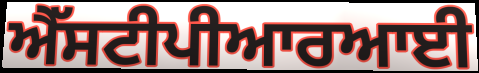
ਐੱਸਟੀਪੀਆਰਆਈ